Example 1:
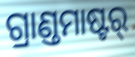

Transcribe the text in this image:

ଗ୍ରାଣ୍ଡମାଷ୍ଟର୍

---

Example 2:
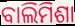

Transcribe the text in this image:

ବାଲିମିଶା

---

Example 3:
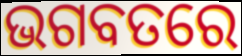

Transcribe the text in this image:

ଭଗବତରେ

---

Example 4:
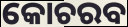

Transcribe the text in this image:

କୋଚରବ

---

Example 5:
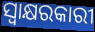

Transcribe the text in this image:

ସ୍ୱାକ୍ଷରକାରୀ